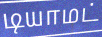
டியாமட்